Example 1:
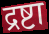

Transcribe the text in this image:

द्रष्टा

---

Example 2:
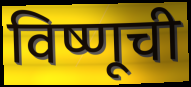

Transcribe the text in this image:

विष्णूची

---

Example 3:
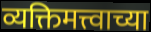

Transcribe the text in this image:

व्यक्तिमत्त्वाच्या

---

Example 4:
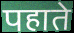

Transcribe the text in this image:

पहाते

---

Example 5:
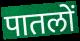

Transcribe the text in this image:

पातलों